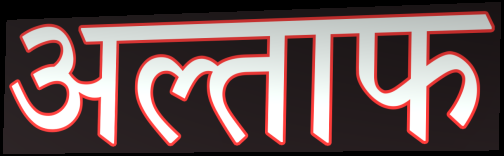
अल्ताफ